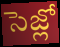
సెజ్లో